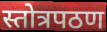
स्तोत्रपठण